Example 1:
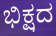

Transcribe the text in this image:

ಭಿಕ್ಷದ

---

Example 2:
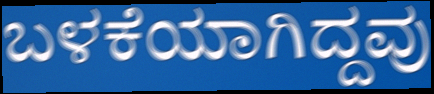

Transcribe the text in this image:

ಬಳಕೆಯಾಗಿದ್ದವು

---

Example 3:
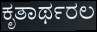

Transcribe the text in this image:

ಕೃತಾರ್ಥರಲ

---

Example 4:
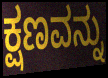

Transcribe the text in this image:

ಕ್ಷಣವನ್ನು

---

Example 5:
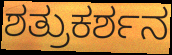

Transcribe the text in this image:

ಶತ್ರುಕರ್ಶನ